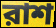
রাশ